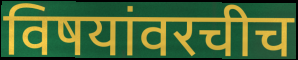
विषयांवरचीच